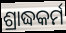
ଶ୍ରାଦ୍ଧକର୍ମ